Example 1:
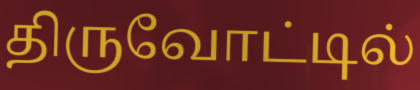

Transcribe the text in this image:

திருவோட்டில்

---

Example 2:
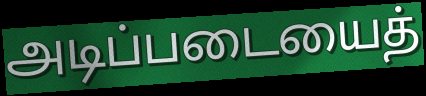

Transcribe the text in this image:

அடிப்படையைத்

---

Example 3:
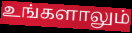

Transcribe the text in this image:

உங்களாலும்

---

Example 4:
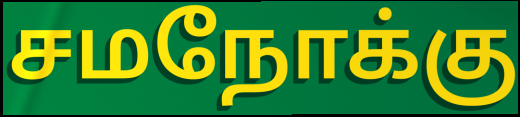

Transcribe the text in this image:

சமநோக்கு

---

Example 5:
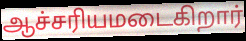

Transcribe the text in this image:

ஆச்சரியமடைகிறார்